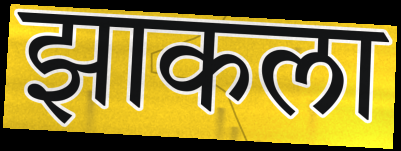
झाकला